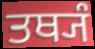
ਤਥ੍ਯੰ